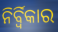
ନିର୍ବ୍ବିକାର